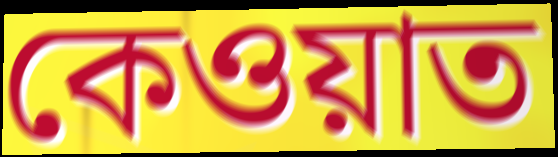
কেওয়াত